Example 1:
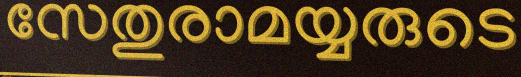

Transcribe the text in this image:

സേതുരാമയ്യരുടെ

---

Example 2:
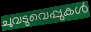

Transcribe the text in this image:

ചുവടുവെപ്പുകൾ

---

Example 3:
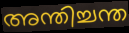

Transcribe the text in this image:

അന്തിച്ചന്ത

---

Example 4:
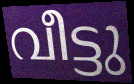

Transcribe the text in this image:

വീട്ടു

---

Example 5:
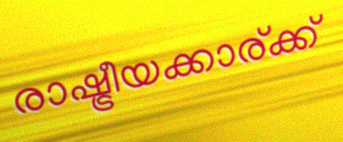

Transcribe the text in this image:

രാഷ്ട്രീയക്കാര്ക്ക്